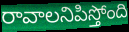
రావాలనిపిస్తోంది